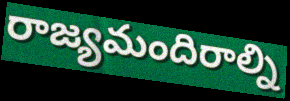
రాజ్యమందిరాల్ని